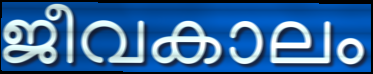
ജീവകാലം